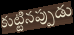
కుట్టినప్పుడు